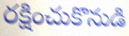
రక్షించుకొనుడి